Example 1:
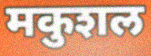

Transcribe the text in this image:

मकुशल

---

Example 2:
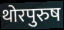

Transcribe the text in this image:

थोरपुरुष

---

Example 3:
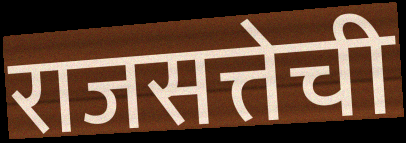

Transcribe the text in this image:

राजसत्तेची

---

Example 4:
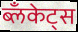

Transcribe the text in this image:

ब्लॅंकेट्स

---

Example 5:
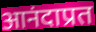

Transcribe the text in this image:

आनंदाप्रत